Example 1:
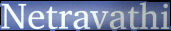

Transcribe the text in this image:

Netravathi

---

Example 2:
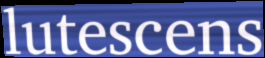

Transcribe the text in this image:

lutescens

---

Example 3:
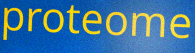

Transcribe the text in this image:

proteome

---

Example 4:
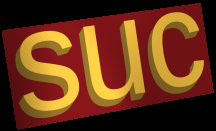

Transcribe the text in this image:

suc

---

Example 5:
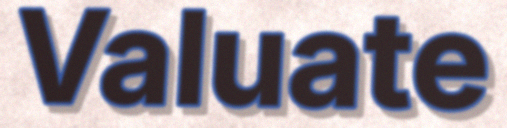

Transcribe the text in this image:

Valuate